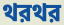
থরথর